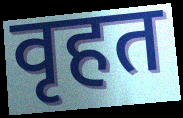
वृहत